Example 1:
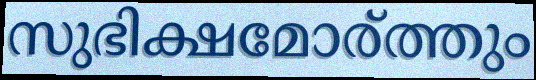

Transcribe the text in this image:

സുഭിക്ഷമോര്ത്തും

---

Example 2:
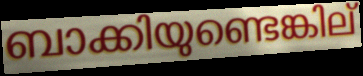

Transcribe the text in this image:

ബാക്കിയുണ്ടെങ്കില്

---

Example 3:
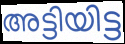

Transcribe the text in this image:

അട്ടിയിട്ട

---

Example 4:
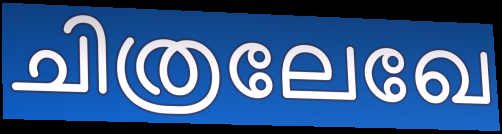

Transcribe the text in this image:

ചിത്രലേഖേ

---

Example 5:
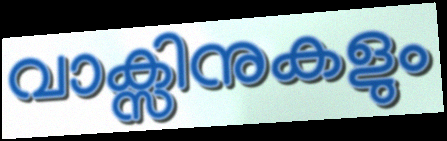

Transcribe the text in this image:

വാക്സിനുകളും